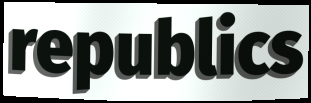
republics